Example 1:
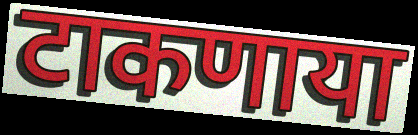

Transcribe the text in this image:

टाकणाया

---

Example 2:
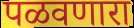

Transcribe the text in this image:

पळवणारा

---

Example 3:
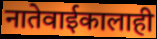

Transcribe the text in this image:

नातेवाईकालाही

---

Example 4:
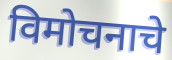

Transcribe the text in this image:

विमोचनाचे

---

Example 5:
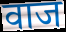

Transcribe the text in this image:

वाज